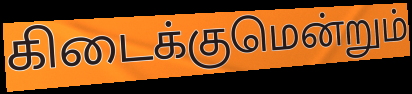
கிடைக்குமென்றும்